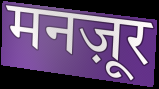
मनज़ूर